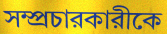
সম্প্রচারকারীকে